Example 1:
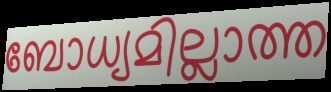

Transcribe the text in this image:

ബോധ്യമില്ലാത്ത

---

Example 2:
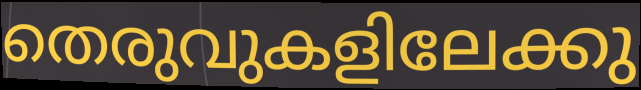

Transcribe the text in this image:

തെരുവുകളിലേക്കു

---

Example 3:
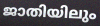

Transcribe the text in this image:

ജാതിയിലും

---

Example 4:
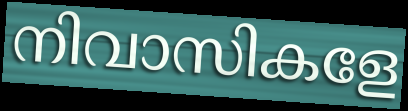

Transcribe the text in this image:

നിവാസികളേ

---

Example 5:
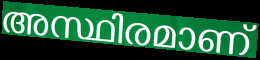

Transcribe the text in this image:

അസ്ഥിരമാണ്